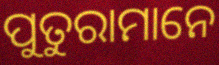
ପୁତୁରାମାନେ